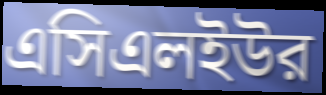
এসিএলইউর